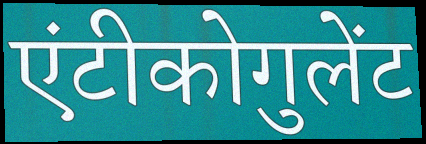
एंटीकोगुलेंट